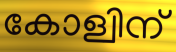
കോള്വിന്